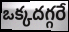
ఒక్కదగ్గరే